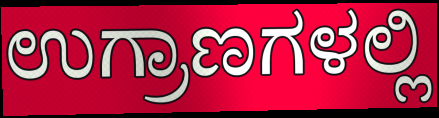
ಉಗ್ರಾಣಗಳಲ್ಲಿ